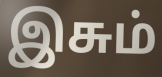
இசும்